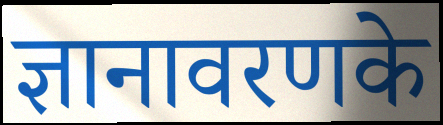
ज्ञानावरणके